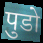
पुडो